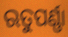
ଋତୁପର୍ଣ୍ଣା